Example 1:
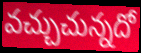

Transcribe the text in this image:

వచ్చుచున్నదో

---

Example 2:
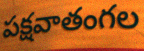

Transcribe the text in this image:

పక్షవాతంగల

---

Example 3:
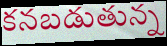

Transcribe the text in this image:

కనబడుతున్న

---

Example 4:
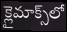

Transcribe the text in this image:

క్లైమాక్స్‌లో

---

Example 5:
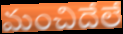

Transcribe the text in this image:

మంచిదేలే